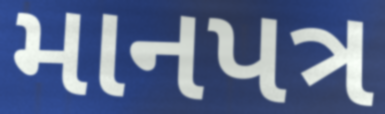
માનપત્ર